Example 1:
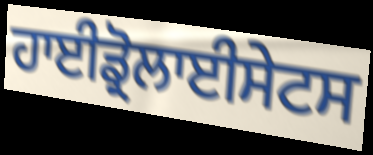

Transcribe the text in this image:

ਹਾਈਡ੍ਰੋਲਾਈਸੇਟਸ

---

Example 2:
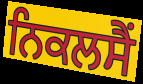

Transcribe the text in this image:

ਨਿਕਲਸੈਂ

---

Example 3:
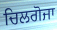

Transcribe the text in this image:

ਚਿਲਗੋਜਾ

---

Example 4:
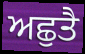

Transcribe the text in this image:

ਅਛੁਤੈ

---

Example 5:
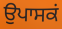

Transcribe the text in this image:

ਉਪਾਸਕਂ